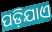
ପଡ଼ିଯାଏ